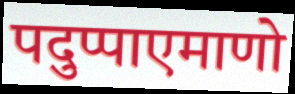
पदुप्पाएमाणो